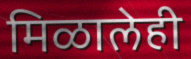
मिळालेही